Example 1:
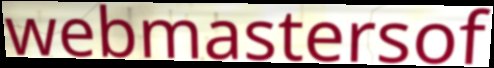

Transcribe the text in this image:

webmastersof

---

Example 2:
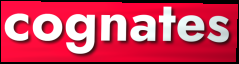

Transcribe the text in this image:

cognates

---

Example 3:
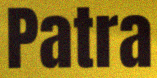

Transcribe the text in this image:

Patra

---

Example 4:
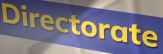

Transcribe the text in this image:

Directorate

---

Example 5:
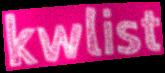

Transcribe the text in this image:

kwlist